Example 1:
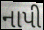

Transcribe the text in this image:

નાપી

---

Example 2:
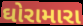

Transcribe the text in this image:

ઘોરામારા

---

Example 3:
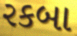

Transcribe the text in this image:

રકબા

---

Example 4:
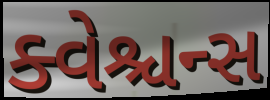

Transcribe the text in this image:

ક્વેશ્ચન્સ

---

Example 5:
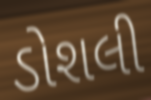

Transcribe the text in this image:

ડોશલી